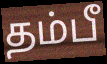
தம்பீ